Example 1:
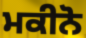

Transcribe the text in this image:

ਮਕੀਨੋ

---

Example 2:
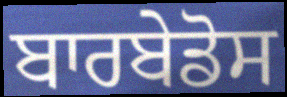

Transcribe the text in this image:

ਬਾਰਬੇਡੋਸ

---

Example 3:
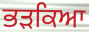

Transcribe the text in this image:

ਭੜਕਿਆ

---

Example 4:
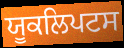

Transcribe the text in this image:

ਯੂਕਲਿਪਟਸ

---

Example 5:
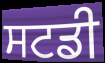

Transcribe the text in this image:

ਸਟਡੀ